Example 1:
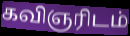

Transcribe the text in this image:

கவிஞரிடம்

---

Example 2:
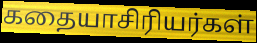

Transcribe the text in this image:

கதையாசிரியர்கள்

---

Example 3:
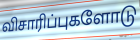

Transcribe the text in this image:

விசாரிப்புகளோடு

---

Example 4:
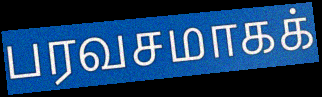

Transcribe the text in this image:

பரவசமாகக்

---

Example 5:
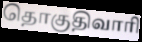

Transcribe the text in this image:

தொகுதிவாரி